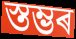
স্তম্ভৰ